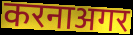
करनाअगर